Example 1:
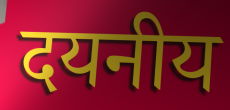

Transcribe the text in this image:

दयनीय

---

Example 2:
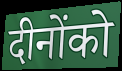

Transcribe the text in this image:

दीनोंको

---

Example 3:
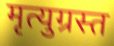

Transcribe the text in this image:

मृत्युग्रस्त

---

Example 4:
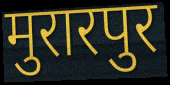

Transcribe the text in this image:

मुरारपुर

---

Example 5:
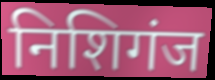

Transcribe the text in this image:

निशिगंज